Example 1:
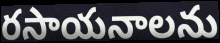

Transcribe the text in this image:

రసాయనాలను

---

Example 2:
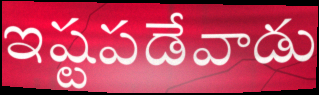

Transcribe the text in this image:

ఇష్టపడేవాడు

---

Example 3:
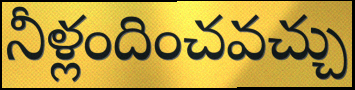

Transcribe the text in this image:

నీళ్లందించవచ్చు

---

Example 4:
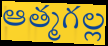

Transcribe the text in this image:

ఆత్మగల్ల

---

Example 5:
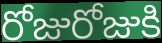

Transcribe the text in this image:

రోజురోజుకి